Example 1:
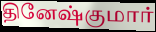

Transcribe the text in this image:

தினேஷ்குமார்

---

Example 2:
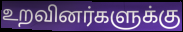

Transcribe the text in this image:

உறவினர்களுக்கு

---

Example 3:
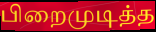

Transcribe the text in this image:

பிறைமுடித்த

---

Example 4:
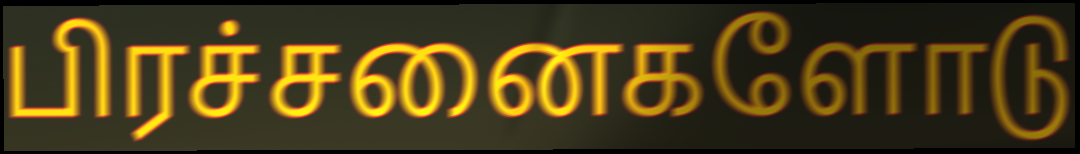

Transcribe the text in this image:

பிரச்சனைகளோடு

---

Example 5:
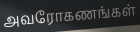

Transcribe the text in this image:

அவரோகணங்கள்